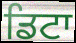
ਡਿਟਾ